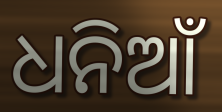
ଧନିଆଁ